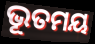
ଭୂତମୟ